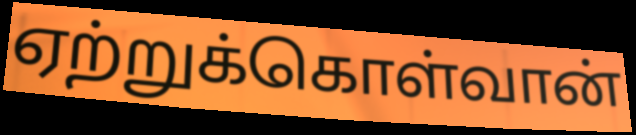
ஏற்றுக்கொள்வான்